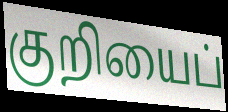
குறியைப்